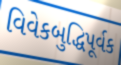
વિવેકબુદ્ધિપૂર્વક